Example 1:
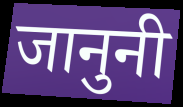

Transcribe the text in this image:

जानुनी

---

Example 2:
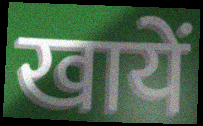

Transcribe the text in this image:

खायें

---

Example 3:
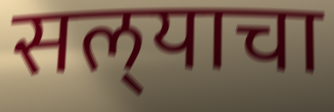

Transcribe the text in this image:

सल्याचा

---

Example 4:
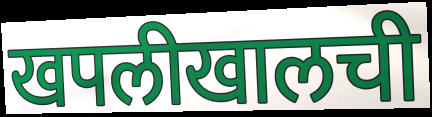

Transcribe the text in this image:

खपलीखालची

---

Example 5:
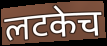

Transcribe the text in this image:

लटकेच